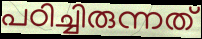
പഠിച്ചിരുന്നത്